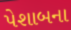
પેશાબના